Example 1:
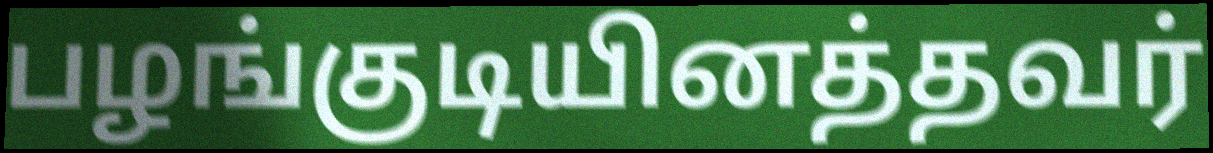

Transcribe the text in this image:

பழங்குடியினத்தவர்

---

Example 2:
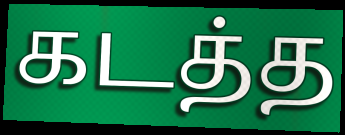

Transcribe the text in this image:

கடத்த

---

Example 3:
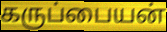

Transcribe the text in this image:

கருப்பையன்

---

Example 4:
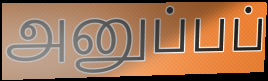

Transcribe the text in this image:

அனுப்பப்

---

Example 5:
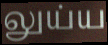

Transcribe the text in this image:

லுய்ய